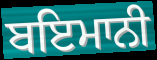
ਬਇਮਾਨੀ